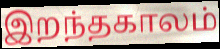
இறந்தகாலம்